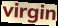
virgin